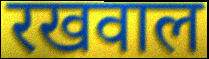
रखवाल